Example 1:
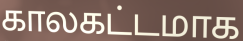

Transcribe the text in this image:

காலகட்டமாக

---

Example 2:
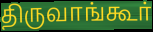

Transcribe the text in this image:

திருவாங்கூர்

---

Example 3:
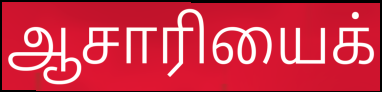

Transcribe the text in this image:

ஆசாரியைக்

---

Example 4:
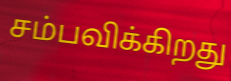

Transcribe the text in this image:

சம்பவிக்கிறது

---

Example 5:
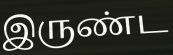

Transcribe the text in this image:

இருண்ட